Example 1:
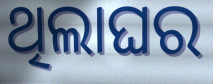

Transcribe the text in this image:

ଥିଲାଘର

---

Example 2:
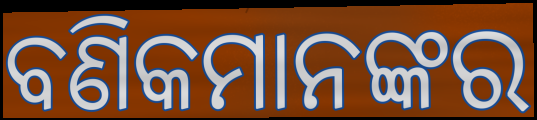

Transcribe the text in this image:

ବଣିକମାନଙ୍କର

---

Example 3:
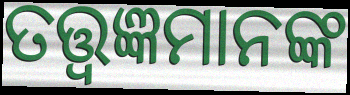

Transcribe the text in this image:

ତତ୍ତ୍ୱଜ୍ଞମାନଙ୍କ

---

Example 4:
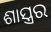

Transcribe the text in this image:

ଶାସ୍ତ୍ରର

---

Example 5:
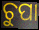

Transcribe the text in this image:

ଚୁପା